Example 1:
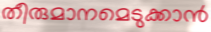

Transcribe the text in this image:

തീരുമാനമെടുക്കാൻ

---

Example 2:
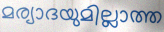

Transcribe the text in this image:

മര്യാദയുമില്ലാത്ത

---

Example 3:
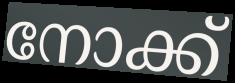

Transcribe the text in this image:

നോക്ക്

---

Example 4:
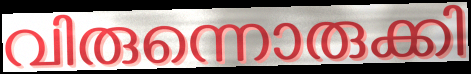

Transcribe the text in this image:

വിരുന്നൊരുക്കി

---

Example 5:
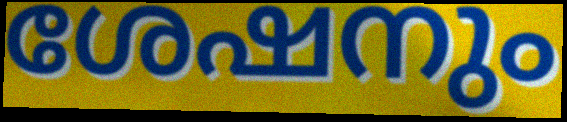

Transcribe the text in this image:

ശേഷനും